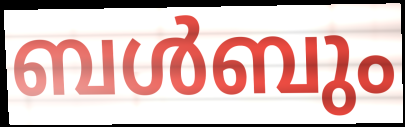
ബൾബും